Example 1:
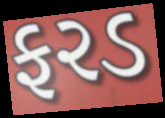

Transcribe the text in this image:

ફરડ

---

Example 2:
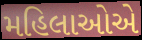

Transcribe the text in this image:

મહિલાઓએ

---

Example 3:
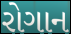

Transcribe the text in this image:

રોગાન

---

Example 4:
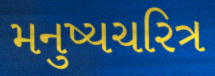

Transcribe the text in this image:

મનુષ્યચરિત્ર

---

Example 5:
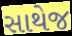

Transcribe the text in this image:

સાથેજ